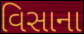
વિસાના